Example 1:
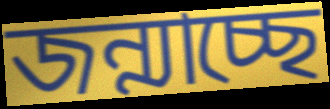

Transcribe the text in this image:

জন্মাচ্ছে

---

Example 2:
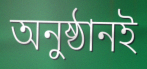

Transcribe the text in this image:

অনুষ্ঠানই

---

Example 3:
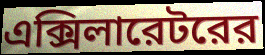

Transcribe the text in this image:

এক্সিলারেটরের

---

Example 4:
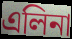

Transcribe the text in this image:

এলিনা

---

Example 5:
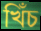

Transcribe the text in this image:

খিঁচ